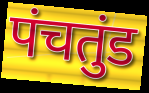
पंचतुंड